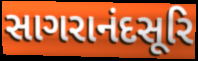
સાગરાનંદસૂરિ